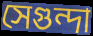
সেগুন্দা